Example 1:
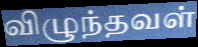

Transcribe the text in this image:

விழுந்தவள்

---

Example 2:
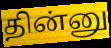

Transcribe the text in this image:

தின்னு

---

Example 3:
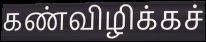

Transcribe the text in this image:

கண்விழிக்கச்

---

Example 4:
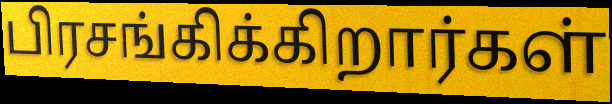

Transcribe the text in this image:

பிரசங்கிக்கிறார்கள்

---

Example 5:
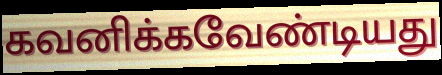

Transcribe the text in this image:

கவனிக்கவேண்டியது